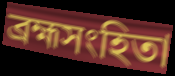
ব্রহ্মসংহিতা